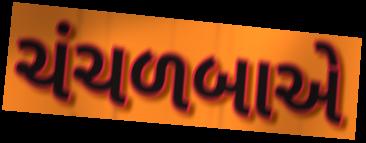
ચંચળબાએ